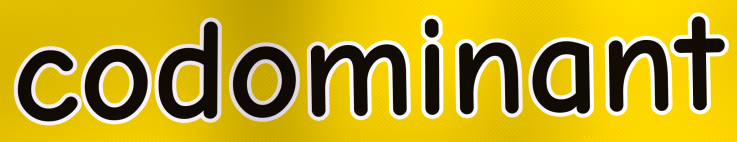
codominant